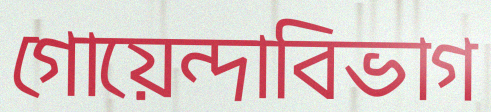
গোয়েন্দাবিভাগ